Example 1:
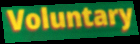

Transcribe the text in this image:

Voluntary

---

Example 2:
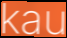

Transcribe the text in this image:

kau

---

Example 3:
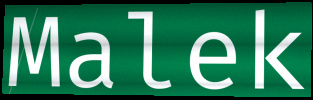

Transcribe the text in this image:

Malek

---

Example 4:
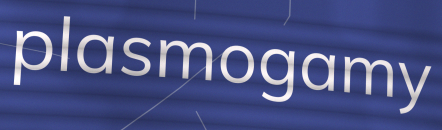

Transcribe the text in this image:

plasmogamy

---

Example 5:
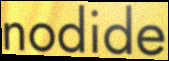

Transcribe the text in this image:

nodide